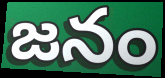
జనం